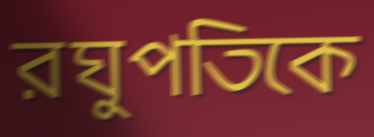
রঘুপতিকে